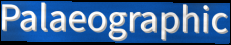
Palaeographic